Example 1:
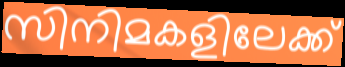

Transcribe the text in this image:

സിനിമകളിലേക്ക്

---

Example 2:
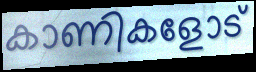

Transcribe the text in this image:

കാണികളോട്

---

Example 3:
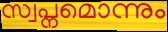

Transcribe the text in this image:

സ്വപ്നമൊന്നും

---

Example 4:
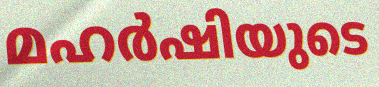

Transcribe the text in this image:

മഹർഷിയുടെ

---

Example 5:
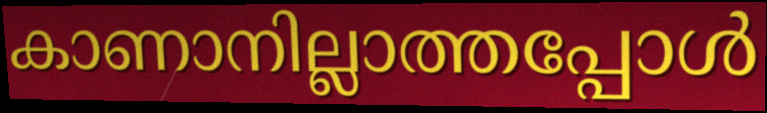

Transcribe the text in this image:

കാണാനില്ലാത്തപ്പോൾ